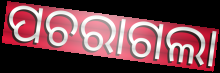
ପଚରାଗଲା